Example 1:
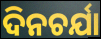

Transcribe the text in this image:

ଦିନଚର୍ଯା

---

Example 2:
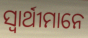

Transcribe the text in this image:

ସ୍ଵାର୍ଥୀମାନେ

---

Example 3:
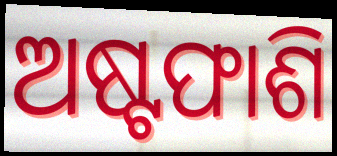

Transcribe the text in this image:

ଅଷ୍ଟଫାଶି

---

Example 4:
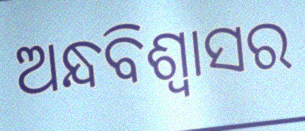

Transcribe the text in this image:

ଅନ୍ଧବିଶ୍ୱାସର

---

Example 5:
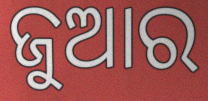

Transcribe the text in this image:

ଜୁଆର